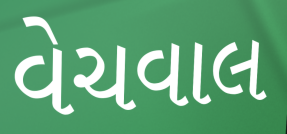
વેચવાલ